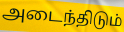
அடைந்திடும்